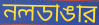
নলডাঙার